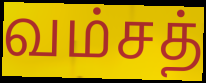
வம்சத்